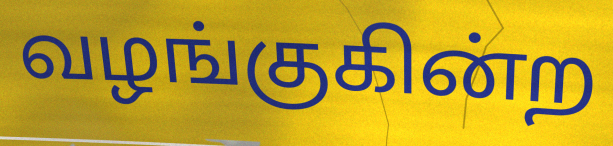
வழங்குகின்ற